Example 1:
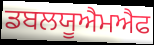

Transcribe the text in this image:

ਡਬਲਯੂਐਮਐਫ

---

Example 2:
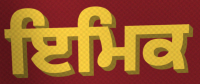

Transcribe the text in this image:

ਇਮਿਕ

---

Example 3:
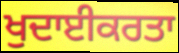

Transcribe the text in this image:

ਖੁਦਾਈਕਰਤਾ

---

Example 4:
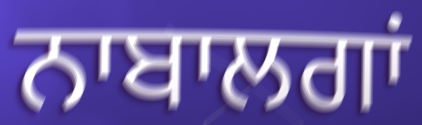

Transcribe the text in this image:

ਨਾਬਾਲਗਾਂ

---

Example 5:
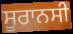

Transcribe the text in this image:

ਸੂਰਾਨਸੀ